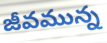
జీవమున్న